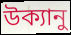
উক্যানু